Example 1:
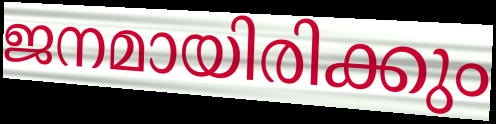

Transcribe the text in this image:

ജനമായിരിക്കും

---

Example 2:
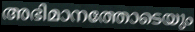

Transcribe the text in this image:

അഭിമാനത്തോടെയും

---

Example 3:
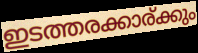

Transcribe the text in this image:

ഇടത്തരക്കാര്ക്കും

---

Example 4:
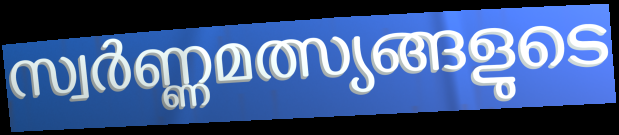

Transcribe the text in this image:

സ്വർണ്ണമത്സ്യങ്ങളുടെ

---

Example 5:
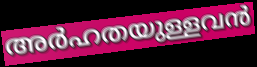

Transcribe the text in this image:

അർഹതയുള്ളവൻ